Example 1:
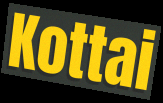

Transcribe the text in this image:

Kottai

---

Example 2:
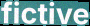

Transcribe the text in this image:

fictive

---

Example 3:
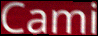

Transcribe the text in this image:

Cami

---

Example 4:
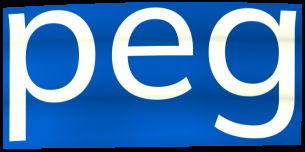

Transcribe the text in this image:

peg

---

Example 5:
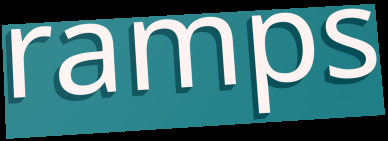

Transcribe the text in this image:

ramps